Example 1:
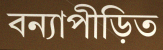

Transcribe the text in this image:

বন্যাপীড়িত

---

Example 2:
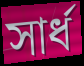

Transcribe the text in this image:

সার্ধ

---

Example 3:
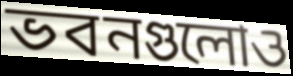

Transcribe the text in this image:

ভবনগুলোও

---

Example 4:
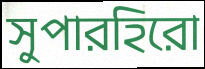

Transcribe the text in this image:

সুপারহিরো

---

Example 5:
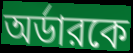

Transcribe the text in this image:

অর্ডারকে